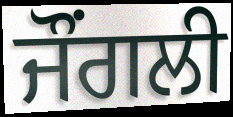
ਜੌਂਗਲੀ